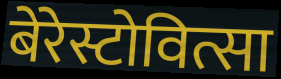
बेरेस्टोवित्सा